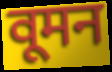
वूमन